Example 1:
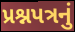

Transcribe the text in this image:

પ્રશ્નપત્રનું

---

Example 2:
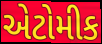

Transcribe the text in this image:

એટોમીક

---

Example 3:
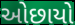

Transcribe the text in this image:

ઓછાયો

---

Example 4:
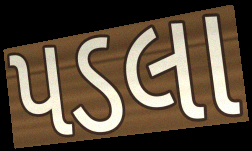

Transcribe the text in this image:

પડલા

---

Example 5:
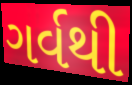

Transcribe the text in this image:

ગર્વથી